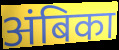
अंबिका